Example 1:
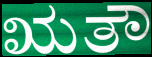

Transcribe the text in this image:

ಋತೌ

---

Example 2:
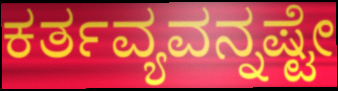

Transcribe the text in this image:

ಕರ್ತವ್ಯವನ್ನಷ್ಟೇ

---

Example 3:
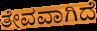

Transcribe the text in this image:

ತೇವವಾಗಿದೆ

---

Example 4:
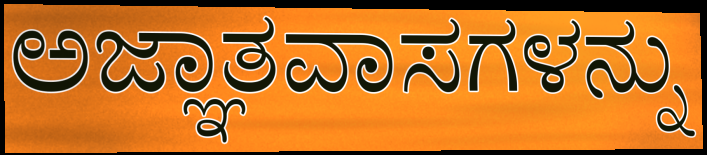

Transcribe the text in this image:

ಅಜ್ಞಾತವಾಸಗಳನ್ನು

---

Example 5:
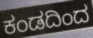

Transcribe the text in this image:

ಕಂಡದಿಂದ